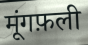
मूंगफ़ली